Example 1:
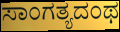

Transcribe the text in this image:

ಸಾಂಗತ್ಯದಂಥ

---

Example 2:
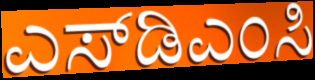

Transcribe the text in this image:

ಎಸ್‌ಡಿಎಂಸಿ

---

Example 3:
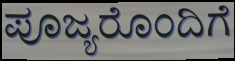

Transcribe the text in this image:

ಪೂಜ್ಯರೊಂದಿಗೆ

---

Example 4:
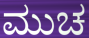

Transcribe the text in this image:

ಮುಚ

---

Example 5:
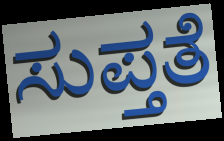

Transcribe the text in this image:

ಸುಪ್ತತೆ